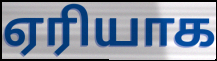
ஏரியாக